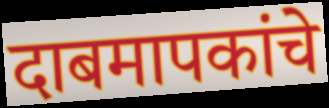
दाबमापकांचे